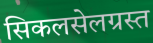
सिकलसेलग्रस्त